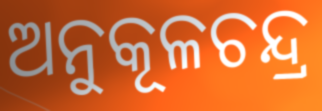
ଅନୁକୂଳଚନ୍ଦ୍ର